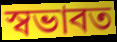
স্বভাবত